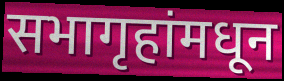
सभागृहांमधून